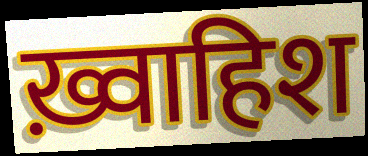
ख़्वाहिश